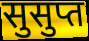
सुसुप्त